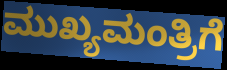
ಮುಖ್ಯಮಂತ್ರಿಗೆ